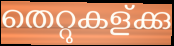
തെറ്റുകള്ക്കു